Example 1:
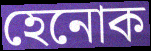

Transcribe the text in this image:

হেনোক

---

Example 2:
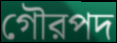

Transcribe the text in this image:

গৌরপদ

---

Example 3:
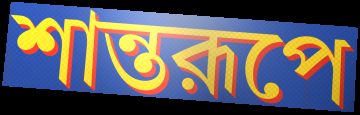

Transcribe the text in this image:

শান্তরূপে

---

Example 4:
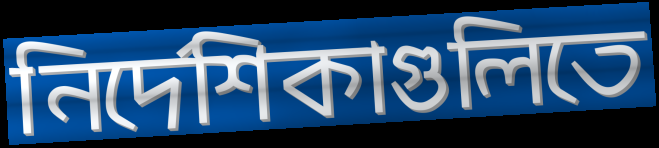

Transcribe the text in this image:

নির্দেশিকাগুলিতে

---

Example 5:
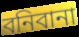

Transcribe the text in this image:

বনিবানা